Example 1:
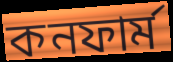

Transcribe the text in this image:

কনফাৰ্ম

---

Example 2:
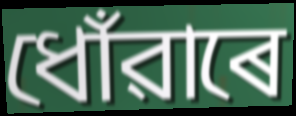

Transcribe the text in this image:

ধোঁৱাৰে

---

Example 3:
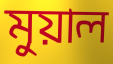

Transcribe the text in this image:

মুয়াল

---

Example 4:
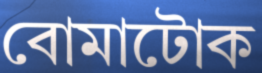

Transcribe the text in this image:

বোমাটোক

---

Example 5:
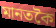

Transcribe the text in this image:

মানতকৈ